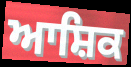
ਆਸ਼ਿਕ